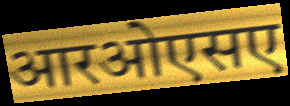
आरओएसए